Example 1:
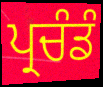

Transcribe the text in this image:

ਪ੍ਰਚੰਡੰ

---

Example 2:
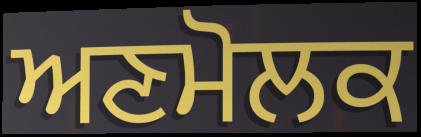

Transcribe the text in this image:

ਅਣਮੋਲਕ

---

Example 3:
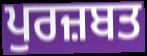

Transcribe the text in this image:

ਪੁਰਜ਼ਬਤ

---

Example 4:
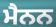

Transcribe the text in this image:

ਮੈਨਨ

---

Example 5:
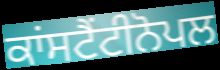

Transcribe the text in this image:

ਕਾਂਸਟੈਂਟੀਨੋਪਲ